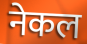
नेकल